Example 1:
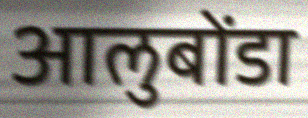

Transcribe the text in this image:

आलुबोंडा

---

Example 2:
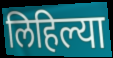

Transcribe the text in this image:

लिहिल्या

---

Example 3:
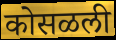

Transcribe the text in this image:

कोसळली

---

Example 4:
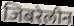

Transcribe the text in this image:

जिबरेलीन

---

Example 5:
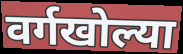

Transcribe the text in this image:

वर्गखोल्या